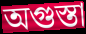
অগুস্তা